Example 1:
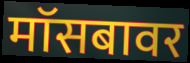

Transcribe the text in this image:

मॉसबावर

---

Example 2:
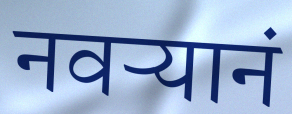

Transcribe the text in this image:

नवऱ्यानं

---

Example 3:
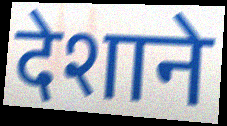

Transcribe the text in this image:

देशाने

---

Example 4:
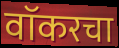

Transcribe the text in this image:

वॉकरचा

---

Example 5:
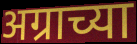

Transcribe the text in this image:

अग्राच्या